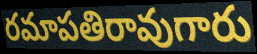
రమాపతిరావుగారు